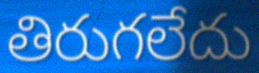
తిరుగలేదు